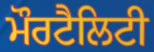
ਮੌਰਟੈਲਿਟੀ